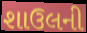
શાઉલની